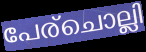
പേര്ചൊല്ലി